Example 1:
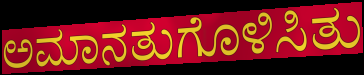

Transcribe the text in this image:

ಅಮಾನತುಗೊಳಿಸಿತು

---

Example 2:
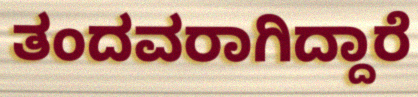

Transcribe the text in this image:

ತಂದವರಾಗಿದ್ದಾರೆ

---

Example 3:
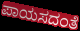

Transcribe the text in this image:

ಪಾಯಸದಂತೆ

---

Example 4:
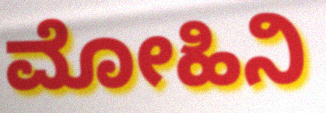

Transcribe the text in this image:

ಮೋಹಿನಿ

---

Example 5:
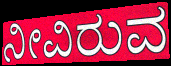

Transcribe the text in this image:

ನೀವಿರುವ